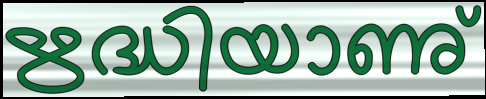
ഋദ്ധിയാണു്